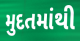
મુદતમાંથી